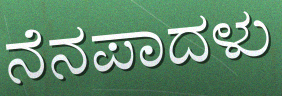
ನೆನಪಾದಳು